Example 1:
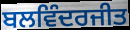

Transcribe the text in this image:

ਬਲਵਿੰਦਰਜੀਤ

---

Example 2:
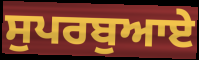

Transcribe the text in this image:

ਸੁਪਰਬੁਆਏ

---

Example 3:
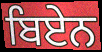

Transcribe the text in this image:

ਬਿਏਨ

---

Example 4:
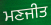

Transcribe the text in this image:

ਮਣਜੀਤ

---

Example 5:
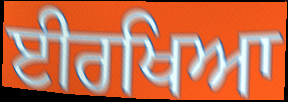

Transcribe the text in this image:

ਈਰਖਿਆ